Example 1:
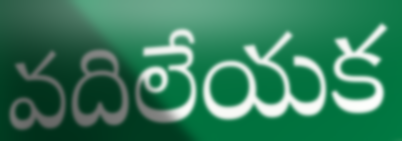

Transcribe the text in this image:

వదిలేయక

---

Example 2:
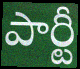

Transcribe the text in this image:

పార్టీ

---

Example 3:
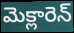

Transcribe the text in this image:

మెక్లారెన్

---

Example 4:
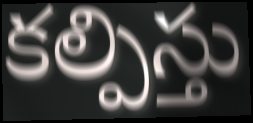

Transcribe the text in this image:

కల్పిస్తు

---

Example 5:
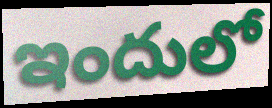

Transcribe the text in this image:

ఇందులో